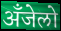
अँजेलो